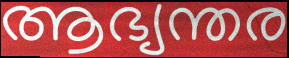
ആഭ്യന്തര